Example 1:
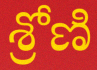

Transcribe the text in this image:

శ్రోణి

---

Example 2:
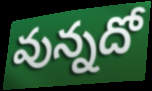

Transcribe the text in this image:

వున్నదో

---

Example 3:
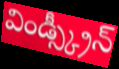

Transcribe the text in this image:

విండ్స్క్రీన్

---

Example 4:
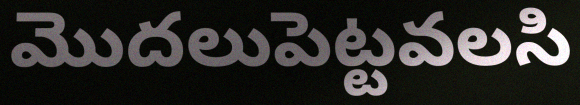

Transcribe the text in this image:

మొదలుపెట్టవలసి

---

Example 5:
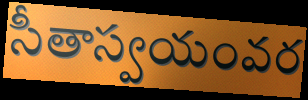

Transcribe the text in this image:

సీతాస్వయంవర